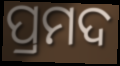
ପ୍ରମଦ